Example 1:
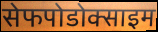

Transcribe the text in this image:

सेफपोडोक्साइम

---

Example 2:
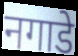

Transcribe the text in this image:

नगाडे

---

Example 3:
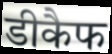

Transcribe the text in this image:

डीकैफ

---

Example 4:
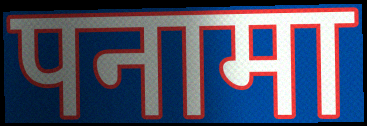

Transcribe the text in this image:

पनामा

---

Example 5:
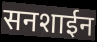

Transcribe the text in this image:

सनशाईन